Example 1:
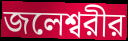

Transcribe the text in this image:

জলেশ্বরীর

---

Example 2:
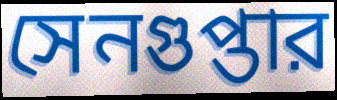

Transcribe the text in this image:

সেনগুপ্তার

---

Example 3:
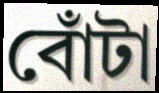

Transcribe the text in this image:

বোঁটা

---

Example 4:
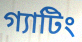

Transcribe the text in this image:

গ্যাটিং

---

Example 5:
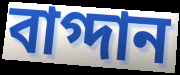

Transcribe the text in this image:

বাগ্দান